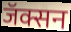
जॅक्सन